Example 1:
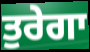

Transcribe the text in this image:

ਤੁਰੇਗਾ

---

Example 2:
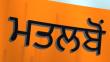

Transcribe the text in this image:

ਮਤਲਬੋਂ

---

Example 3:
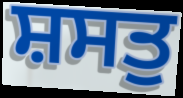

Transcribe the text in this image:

ਸ਼ਸਤੁ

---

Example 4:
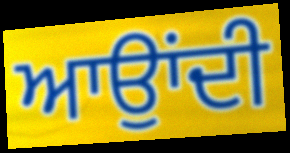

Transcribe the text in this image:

ਆਉਾਂਦੀ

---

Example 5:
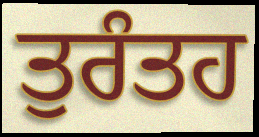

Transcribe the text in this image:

ਤੁਰੰਤਹ